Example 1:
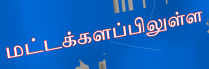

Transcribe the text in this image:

மட்டக்களப்பிலுள்ள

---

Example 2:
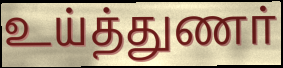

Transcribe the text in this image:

உய்த்துணர்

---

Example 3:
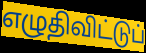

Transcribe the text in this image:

எழுதிவிட்டுப்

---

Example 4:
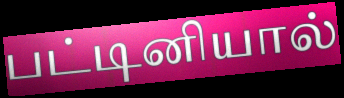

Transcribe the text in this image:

பட்டினியால்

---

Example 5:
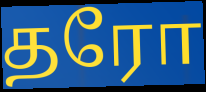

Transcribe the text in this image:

தரோ